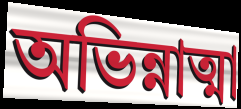
অভিন্নাত্মা